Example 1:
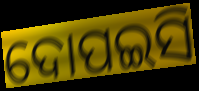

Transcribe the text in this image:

ଦୋପଇସି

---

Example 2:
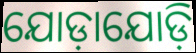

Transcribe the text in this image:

ଯୋଡ଼ାଯୋଡ଼ି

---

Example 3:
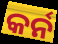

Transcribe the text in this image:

କର୍ନ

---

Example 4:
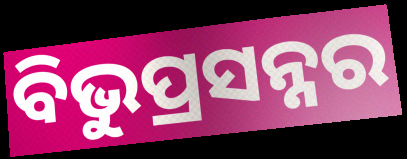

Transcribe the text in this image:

ବିଭୁପ୍ରସନ୍ନର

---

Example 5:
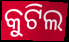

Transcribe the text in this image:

କୁଟିଲ